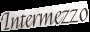
Intermezzo